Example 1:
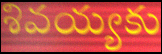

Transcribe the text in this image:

శివయ్యకు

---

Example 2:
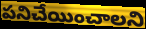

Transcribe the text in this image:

పనిచేయించాలని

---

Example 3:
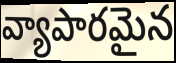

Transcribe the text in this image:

వ్యాపారమైన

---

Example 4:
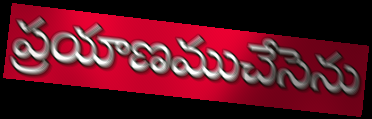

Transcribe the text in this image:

ప్రయాణముచేసెను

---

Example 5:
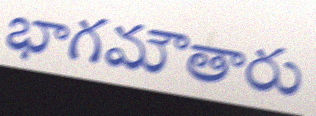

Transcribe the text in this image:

భాగమౌతారు